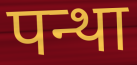
पन्‍था